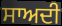
ਸਾਅਦੀ